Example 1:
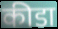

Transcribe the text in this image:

कीडा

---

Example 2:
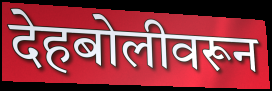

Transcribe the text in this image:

देहबोलीवरून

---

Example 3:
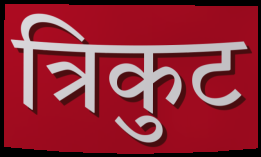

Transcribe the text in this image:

त्रिकुट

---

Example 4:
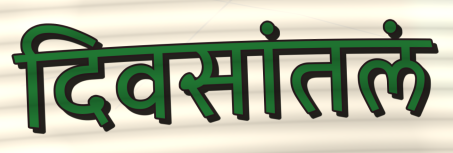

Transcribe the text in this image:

दिवसांतलं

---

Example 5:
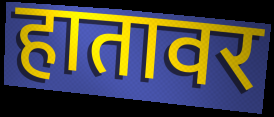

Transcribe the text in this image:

हातावर